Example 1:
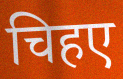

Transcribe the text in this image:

चिहए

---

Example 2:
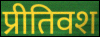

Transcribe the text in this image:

प्रीतिवश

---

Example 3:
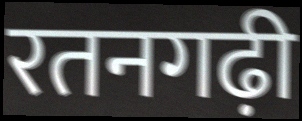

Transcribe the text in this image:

रतनगढ़ी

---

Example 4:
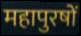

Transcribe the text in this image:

महापुरषों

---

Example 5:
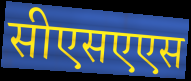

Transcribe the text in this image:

सीएसएएस